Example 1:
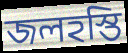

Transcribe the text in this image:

জলহস্তি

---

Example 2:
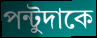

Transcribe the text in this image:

পন্টুদাকে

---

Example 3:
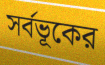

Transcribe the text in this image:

সর্বভূকের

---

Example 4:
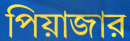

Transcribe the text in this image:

পিয়াজার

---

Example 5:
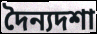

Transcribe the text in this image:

দৈন্যদশা